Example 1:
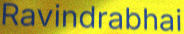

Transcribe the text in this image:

Ravindrabhai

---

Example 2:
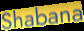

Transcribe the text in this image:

Shabana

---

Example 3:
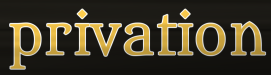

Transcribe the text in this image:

privation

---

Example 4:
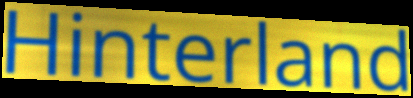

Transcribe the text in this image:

Hinterland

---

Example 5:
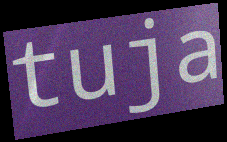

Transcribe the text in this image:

tuja